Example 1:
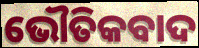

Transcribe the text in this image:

ଭୌତିକବାଦ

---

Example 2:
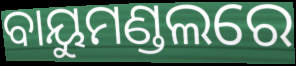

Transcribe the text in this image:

ବାୟୁମଣ୍ଡଲରେ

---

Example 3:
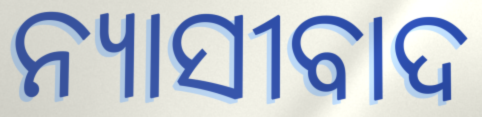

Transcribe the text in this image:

ନ୍ୟାସୀବାଦ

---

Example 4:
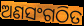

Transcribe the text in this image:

ଅଣସଂଗଠିତ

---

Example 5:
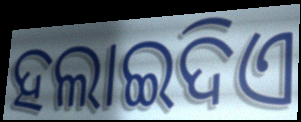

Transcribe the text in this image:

ହଲାଇଦିଏ